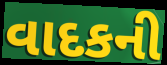
વાદકની